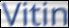
Vitin